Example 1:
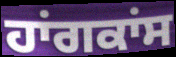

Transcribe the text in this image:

ਹਾਂਗਕਾਂਸ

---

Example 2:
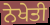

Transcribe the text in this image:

ਨੇਖੇਤੀ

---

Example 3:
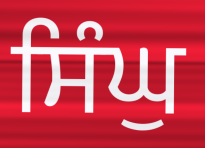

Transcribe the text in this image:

ਸਿੰਘੁ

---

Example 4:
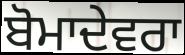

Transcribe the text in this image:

ਬੋਮਾਦੇਵਰਾ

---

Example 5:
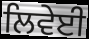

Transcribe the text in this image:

ਲਿਵੇਈ